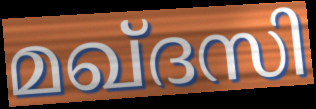
മഖ്ദസി